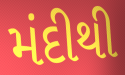
મંદીથી